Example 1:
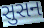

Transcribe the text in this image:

સુસન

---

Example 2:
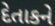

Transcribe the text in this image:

દેતાકને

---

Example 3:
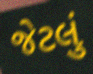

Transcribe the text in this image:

જેટલું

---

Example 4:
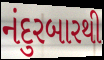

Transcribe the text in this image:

નંદુરબારથી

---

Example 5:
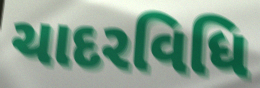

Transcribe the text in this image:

ચાદરવિધિ